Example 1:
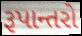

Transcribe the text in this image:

રૂપાન્તરો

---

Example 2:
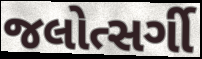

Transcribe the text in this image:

જલોત્સર્ગી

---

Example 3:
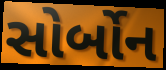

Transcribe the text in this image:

સોર્બોન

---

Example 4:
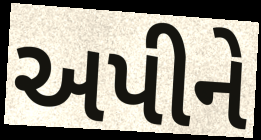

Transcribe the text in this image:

અપીને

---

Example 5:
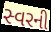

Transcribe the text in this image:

સ્વરની